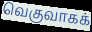
வெகுவாகக்